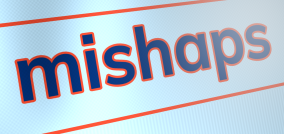
mishaps